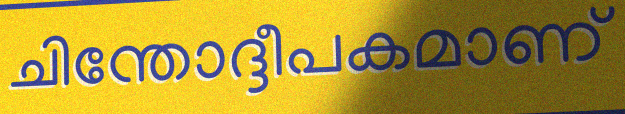
ചിന്തോദ്ദീപകമാണ്